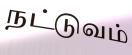
நட்டுவம்